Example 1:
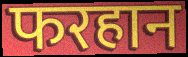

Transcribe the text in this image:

फरहान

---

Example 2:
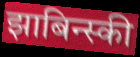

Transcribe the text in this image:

झाबिन्स्की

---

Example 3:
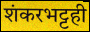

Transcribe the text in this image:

शंकरभट्टही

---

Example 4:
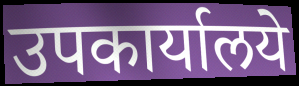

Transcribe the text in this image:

उपकार्यालये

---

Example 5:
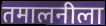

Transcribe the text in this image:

तमालनीला